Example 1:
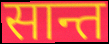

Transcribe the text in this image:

सान्त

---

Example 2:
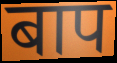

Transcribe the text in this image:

बाप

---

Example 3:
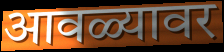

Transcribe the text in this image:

आवळ्यावर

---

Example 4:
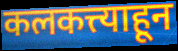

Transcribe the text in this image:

कलकत्त्याहून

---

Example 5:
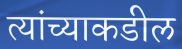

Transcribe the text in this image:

त्यांच्याकडील